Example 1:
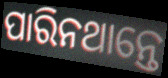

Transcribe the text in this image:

ପାରିନଥାନ୍ତେ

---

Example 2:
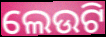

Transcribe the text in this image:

ଲେଉଟି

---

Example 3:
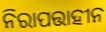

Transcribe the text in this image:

ନିରାପତ୍ତାହୀନ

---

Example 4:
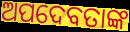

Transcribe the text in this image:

ଅପଦେବତାଙ୍କ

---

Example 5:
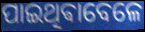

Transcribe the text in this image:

ପାଇଥିଵାବେଳେ